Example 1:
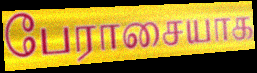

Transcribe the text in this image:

பேராசையாக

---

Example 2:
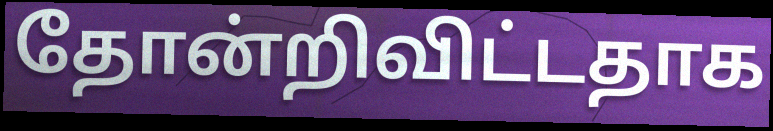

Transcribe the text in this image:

தோன்றிவிட்டதாக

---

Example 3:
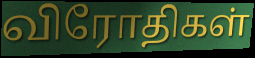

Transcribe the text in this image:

விரோதிகள்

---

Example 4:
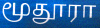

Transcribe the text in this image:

மூதூரா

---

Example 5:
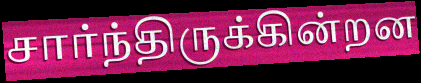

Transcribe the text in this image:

சார்ந்திருக்கின்றன